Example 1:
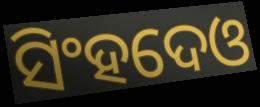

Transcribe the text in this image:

ସିଂହଦେଓ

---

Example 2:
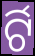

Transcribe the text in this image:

ର୍ଟି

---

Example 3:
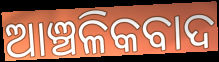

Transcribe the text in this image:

ଆଞ୍ଚଳିକବାଦ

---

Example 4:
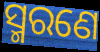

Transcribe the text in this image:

ସ୍ମରଣେ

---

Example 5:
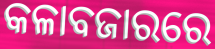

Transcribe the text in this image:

କଳାବଜାରରେ